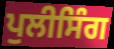
ਪੁਲੀਸਿੰਗ